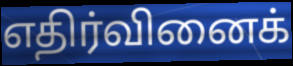
எதிர்வினைக்